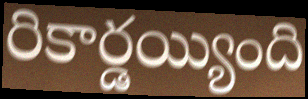
రికార్డయ్యింది